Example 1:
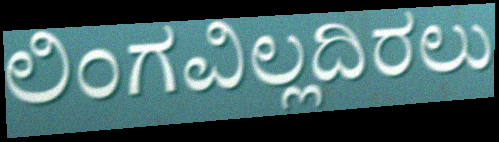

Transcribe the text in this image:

ಲಿಂಗವಿಲ್ಲದಿರಲು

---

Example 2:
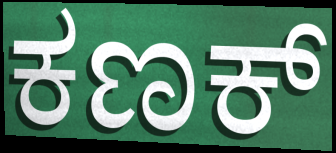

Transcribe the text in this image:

ಕಣಕ್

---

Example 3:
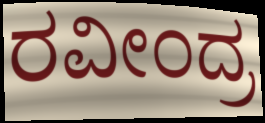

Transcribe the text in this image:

ರವೀಂದ್ರ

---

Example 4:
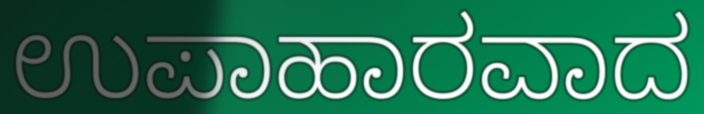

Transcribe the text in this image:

ಉಪಾಹಾರವಾದ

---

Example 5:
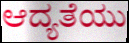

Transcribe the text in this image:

ಆದ್ಯತೆಯು